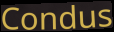
Condus